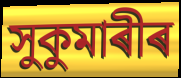
সুকুমাৰীৰ